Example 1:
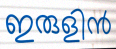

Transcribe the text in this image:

ഇരുളിൻ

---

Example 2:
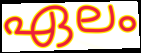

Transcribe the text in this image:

ഏലം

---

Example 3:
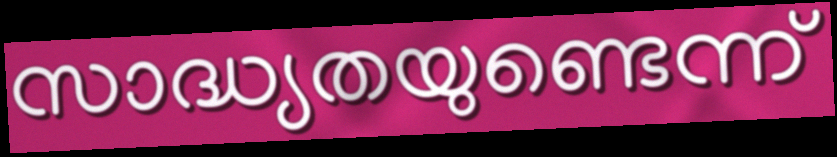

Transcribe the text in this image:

സാദ്ധ്യതയുണ്ടെന്ന്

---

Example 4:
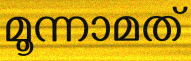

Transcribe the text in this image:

മൂന്നാമത്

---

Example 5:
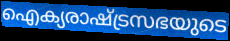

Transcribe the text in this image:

ഐക്യരാഷ്ട്രസഭയുടെ